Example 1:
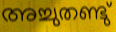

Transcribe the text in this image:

അച്ചുതണ്ടു്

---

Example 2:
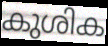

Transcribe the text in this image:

കുശിക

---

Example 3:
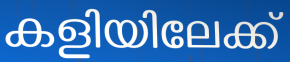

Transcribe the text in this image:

കളിയിലേക്ക്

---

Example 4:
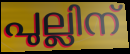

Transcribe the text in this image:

പുല്ലിന്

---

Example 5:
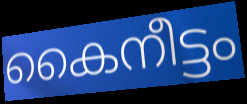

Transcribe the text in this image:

കൈനീട്ടം